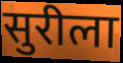
सुरीला